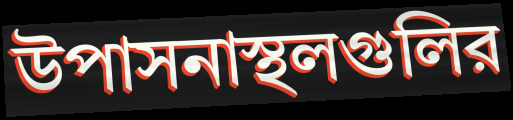
উপাসনাস্থলগুলির